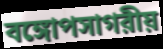
বঙ্গোপসাগরীয়